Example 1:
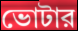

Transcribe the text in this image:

ভোটার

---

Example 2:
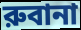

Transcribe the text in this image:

রুবানা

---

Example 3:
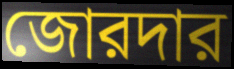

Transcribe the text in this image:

জোরদার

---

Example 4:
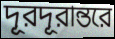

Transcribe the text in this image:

দূরদূরান্তরে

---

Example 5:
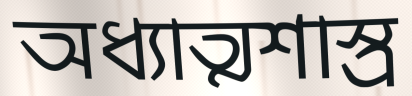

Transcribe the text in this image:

অধ্যাত্মশাস্ত্র